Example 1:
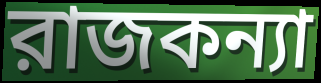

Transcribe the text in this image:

রাজকন্যা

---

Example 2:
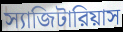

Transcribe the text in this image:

স্যাজিটারিয়াস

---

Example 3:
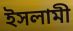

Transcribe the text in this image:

ইসলামী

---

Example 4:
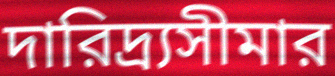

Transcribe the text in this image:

দারিদ্র্যসীমার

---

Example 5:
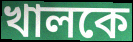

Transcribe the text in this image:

খালকে